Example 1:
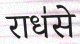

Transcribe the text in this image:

राध॑से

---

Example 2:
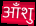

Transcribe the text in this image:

आँशु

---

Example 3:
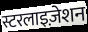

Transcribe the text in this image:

स्टरलाइज़ेशन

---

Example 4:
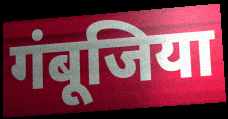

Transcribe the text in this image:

गंबूजिया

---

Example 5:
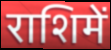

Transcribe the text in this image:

राशिमें